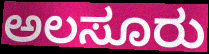
ಅಲಸೂರು